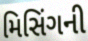
મિસિંગની